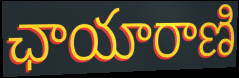
ఛాయారాణి